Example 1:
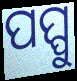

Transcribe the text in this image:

ପପ୍ପୁ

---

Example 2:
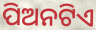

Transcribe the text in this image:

ପିଅନଟିଏ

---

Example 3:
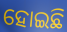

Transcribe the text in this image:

ହୋଇଛି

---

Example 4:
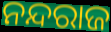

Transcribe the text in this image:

ନନ୍ଦରାଜ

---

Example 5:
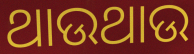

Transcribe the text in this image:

ଥାଉଥାଉ